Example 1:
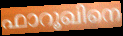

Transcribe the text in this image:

ഫാറൂഖിനെ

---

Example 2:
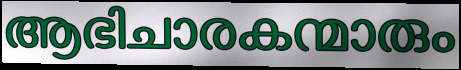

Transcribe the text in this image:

ആഭിചാരകന്മാരും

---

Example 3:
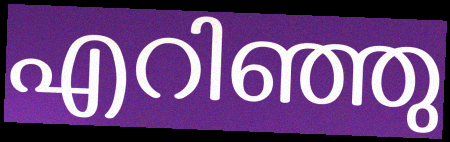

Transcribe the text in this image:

എറിഞ്ഞു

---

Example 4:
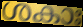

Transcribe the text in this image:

ശകാഃ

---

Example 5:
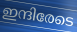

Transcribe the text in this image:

ഇന്ദിരേടെ